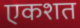
एकशत